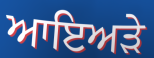
ਆਇਅੜੇ